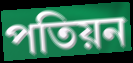
পতিয়ন